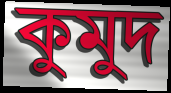
কুমুদ